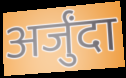
अर्जुंदा